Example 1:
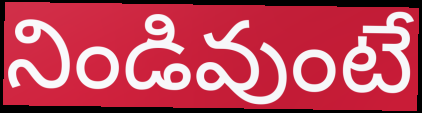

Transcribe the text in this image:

నిండివుంటే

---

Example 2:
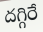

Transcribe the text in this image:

దగ్గిరే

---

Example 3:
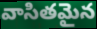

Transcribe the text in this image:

వాసితమైన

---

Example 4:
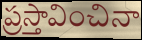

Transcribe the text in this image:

ప్రస్తావించినా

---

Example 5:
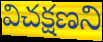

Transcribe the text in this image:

విచక్షణని